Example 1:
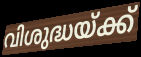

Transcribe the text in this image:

വിശുദ്ധയ്ക്ക്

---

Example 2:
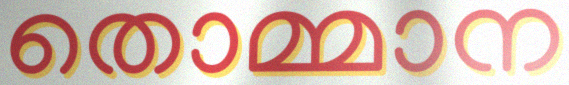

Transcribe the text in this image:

തൊമ്മാന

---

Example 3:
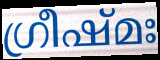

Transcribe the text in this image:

ഗ്രീഷ്മഃ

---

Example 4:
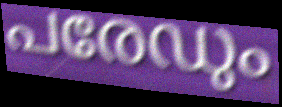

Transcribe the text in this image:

പരേഡും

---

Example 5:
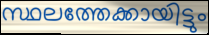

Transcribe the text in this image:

സ്ഥലത്തേക്കായിട്ടും